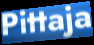
Pittaja